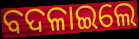
ବଦଳାଇଲେ